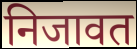
निजावत